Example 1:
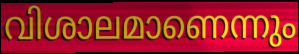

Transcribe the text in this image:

വിശാലമാണെന്നും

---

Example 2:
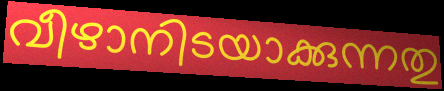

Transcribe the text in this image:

വീഴാനിടയാക്കുന്നതു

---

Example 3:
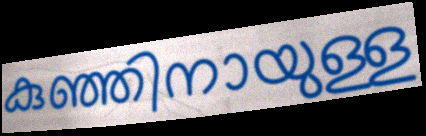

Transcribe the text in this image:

കുഞ്ഞിനായുള്ള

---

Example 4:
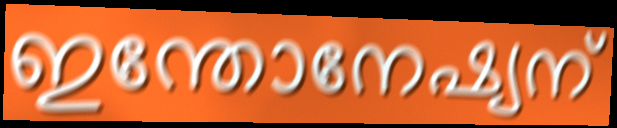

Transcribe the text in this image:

ഇന്തോനേഷ്യന്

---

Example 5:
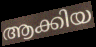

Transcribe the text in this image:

ആക്കിയ